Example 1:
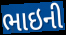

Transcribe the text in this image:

ભાઇની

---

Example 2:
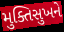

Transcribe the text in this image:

મુક્તિસુખને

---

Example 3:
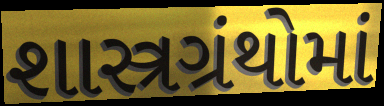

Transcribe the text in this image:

શાસ્ત્રગ્રંથોમાં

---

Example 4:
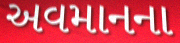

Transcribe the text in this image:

અવમાનના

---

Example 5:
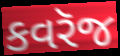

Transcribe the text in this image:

કવરૅજ